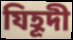
যিহূদী